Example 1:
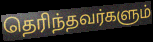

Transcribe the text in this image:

தெரிந்தவர்களும்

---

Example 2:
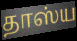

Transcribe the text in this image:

தாஸ்ய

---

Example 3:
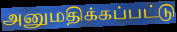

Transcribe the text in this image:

அனுமதிக்கப்பட்டு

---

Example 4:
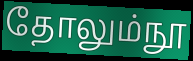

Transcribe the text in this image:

தோலும்நூ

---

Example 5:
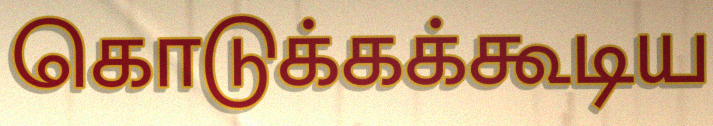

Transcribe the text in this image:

கொடுக்கக்கூடிய